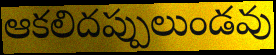
ఆకలిదప్పులుండవు